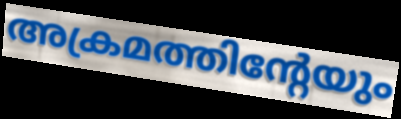
അക്രമത്തിന്റേയും